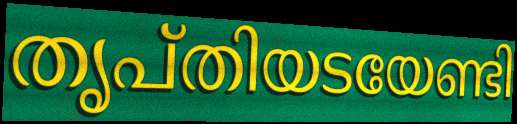
തൃപ്തിയടയേണ്ടി